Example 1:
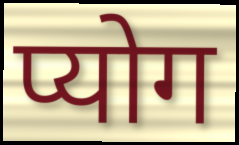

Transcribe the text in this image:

प्योग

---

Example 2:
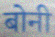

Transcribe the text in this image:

बोनी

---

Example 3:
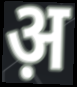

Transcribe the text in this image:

अ़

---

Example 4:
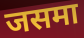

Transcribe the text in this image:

जसमा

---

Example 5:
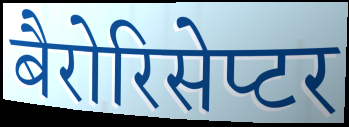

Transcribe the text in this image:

बैरोरिसेप्टर